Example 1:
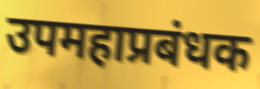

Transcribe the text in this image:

उपमहाप्रबंधक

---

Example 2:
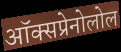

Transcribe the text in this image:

ऑक्सप्रेनोलोल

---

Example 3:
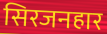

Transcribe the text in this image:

सिरजनहार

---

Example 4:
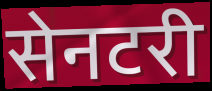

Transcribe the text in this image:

सेनटरी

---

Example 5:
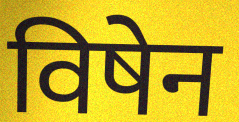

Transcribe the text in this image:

विषेन